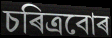
চৰিত্ৰবোৰ